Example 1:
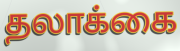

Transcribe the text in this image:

தலாக்கை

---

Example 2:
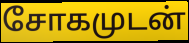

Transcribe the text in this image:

சோகமுடன்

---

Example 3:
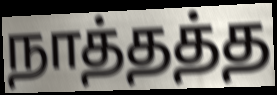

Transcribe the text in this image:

நாத்தத்த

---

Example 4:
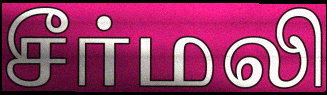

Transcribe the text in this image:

சீர்மலி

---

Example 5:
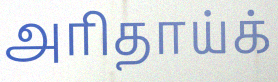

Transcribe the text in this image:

அரிதாய்க்